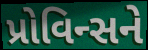
પ્રોવિન્સને